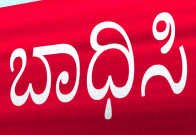
ಬಾಧಿಸಿ